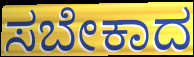
ಸಬೇಕಾದ